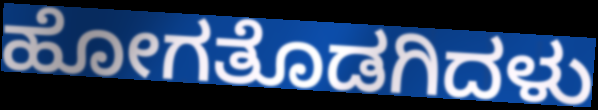
ಹೋಗತೊಡಗಿದಳು